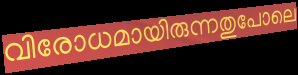
വിരോധമായിരുന്നതുപോലെ